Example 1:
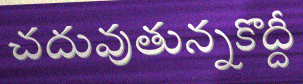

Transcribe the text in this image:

చదువుతున్నకొద్దీ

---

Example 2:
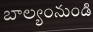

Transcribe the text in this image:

బాల్యంనుండి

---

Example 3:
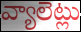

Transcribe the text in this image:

వ్యాలెట్లు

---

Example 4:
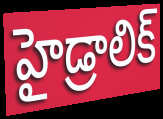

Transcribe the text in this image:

హైడ్రాలిక్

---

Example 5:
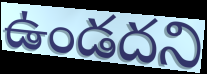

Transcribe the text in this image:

ఉండదని